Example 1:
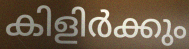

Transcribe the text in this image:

കിളിർക്കും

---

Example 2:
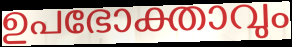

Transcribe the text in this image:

ഉപഭോക്താവും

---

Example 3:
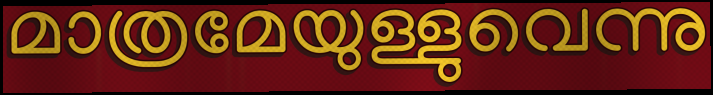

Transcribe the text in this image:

മാത്രമേയുള്ളുവെന്നു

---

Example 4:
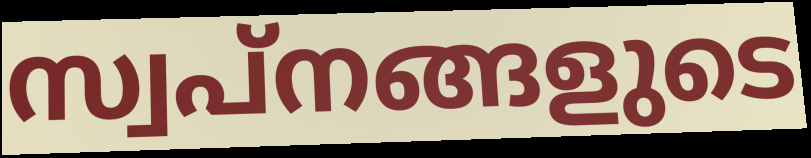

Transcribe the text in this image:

സ്വപ്നങ്ങളുടെ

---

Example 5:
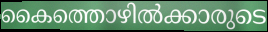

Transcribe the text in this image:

കൈത്തൊഴിൽക്കാരുടെ